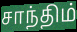
சாந்திம்